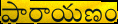
పారాయణం